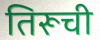
तिरूची